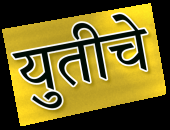
युतीचे